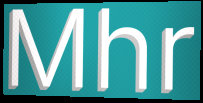
Mhr